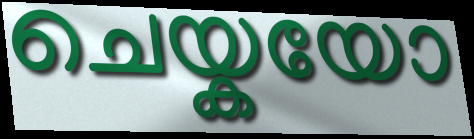
ചെയ്കയോ